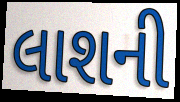
લાશની